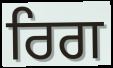
ਰਿਗ